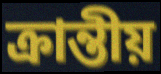
ক্রান্তীয়